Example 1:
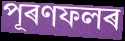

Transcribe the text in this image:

পূৰণফলৰ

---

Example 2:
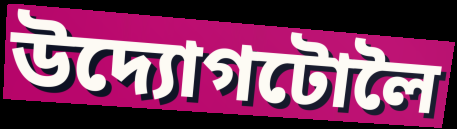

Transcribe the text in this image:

উদ্যোগটোলৈ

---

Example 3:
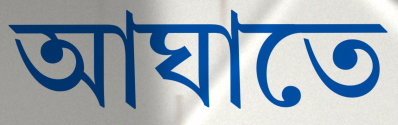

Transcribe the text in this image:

আঘাতে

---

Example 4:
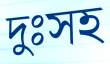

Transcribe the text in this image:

দুঃসহ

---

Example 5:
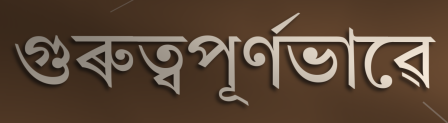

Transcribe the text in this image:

গুৰুত্বপূৰ্ণভাৱে